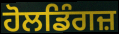
ਹੋਲਡਿੰਗਜ਼